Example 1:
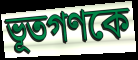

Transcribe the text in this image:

ভূতগণকে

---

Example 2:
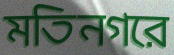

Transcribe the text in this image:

মতিনগরে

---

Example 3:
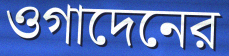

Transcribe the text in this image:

ওগাদেনের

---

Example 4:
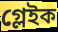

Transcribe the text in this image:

গ্লেইক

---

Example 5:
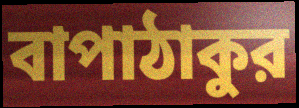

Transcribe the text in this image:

বাপাঠাকুর